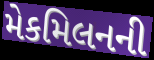
મેકમિલનની